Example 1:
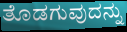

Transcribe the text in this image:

ತೊಡಗುವುದನ್ನು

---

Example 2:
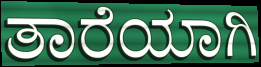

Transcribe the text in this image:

ತಾರೆಯಾಗಿ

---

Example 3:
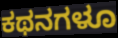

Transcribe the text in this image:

ಕಥನಗಳೂ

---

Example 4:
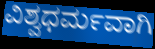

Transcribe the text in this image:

ವಿಶ್ವಧರ್ಮವಾಗಿ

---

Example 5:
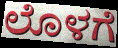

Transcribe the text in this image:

ಲೊಳಗೆ